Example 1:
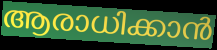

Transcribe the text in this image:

ആരാധിക്കാൻ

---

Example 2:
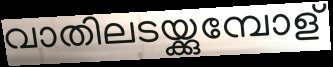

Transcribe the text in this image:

വാതിലടയ്ക്കുമ്പോള്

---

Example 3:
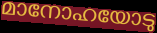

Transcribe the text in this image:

മാനോഹയോടു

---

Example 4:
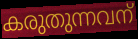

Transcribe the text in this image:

കരുതുന്നവന്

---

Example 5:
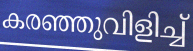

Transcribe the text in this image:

കരഞ്ഞുവിളിച്ച്